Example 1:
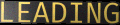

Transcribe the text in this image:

LEADING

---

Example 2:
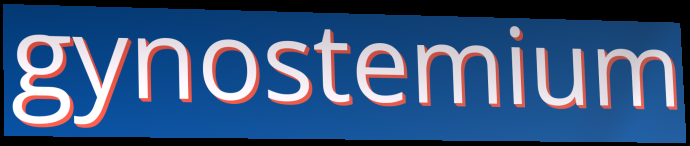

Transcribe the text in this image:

gynostemium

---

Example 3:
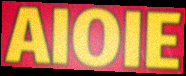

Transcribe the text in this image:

AIOIE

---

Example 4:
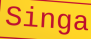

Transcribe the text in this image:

Singa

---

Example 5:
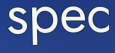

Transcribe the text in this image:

spec